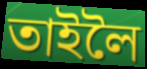
তাইলৈ